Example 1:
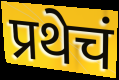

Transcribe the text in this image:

प्रथेचं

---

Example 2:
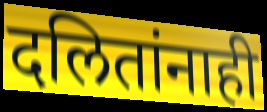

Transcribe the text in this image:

दलितांनाही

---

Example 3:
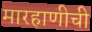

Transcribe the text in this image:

मारहाणीची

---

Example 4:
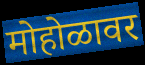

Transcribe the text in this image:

मोहोळावर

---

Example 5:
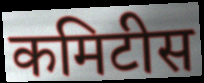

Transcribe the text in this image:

कमिटीस